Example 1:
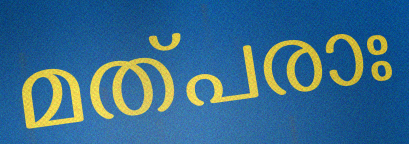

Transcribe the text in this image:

മത്പരാഃ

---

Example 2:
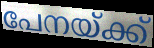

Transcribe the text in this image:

പേനയ്ക്ക്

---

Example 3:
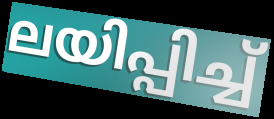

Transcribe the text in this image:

ലയിപ്പിച്ച്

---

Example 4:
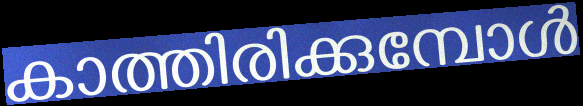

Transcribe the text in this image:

കാത്തിരിക്കുമ്പോൾ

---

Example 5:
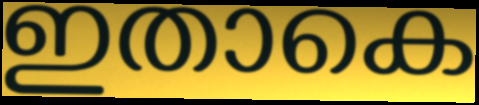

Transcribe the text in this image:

ഇതാകെ